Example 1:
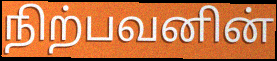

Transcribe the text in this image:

நிற்பவனின்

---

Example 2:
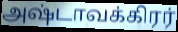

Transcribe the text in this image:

அஷ்டாவக்கிரர்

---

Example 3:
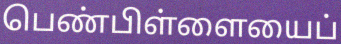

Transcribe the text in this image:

பெண்பிள்ளையைப்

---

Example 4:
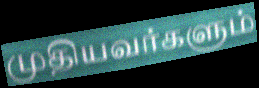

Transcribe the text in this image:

முதியவர்களும்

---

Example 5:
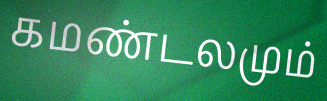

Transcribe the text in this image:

கமண்டலமும்